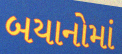
બયાનોમાં